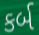
કર્બ